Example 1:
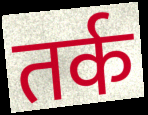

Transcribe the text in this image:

तर्क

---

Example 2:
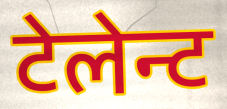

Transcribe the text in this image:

टेलेन्ट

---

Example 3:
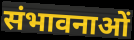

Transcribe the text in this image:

संभावनाओं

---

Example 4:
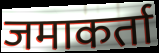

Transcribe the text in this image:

जमाकर्ता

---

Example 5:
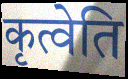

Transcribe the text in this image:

कृत्वेति